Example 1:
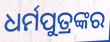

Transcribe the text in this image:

ଧର୍ମପୁତ୍ରଙ୍କର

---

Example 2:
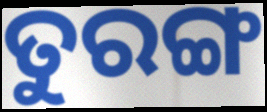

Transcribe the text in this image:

ତୁରଙ୍ଗ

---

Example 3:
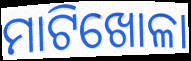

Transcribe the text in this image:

ମାଟିଖୋଳା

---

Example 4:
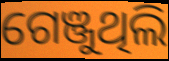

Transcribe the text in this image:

ଗେଞ୍ଜୁଥିଲି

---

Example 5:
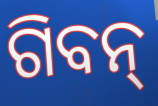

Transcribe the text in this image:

ଗିବନ୍